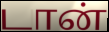
டான்